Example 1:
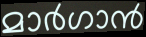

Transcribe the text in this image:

മാർഗാൻ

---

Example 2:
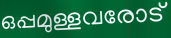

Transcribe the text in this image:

ഒപ്പമുള്ളവരോട്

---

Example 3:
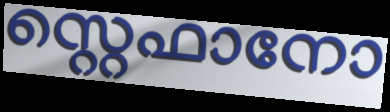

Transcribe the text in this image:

സ്റ്റെഫാനോ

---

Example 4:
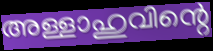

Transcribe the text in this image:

അള്ളാഹുവിന്റെ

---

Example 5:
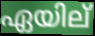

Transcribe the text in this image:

ഏയില്